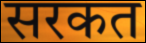
सरकत